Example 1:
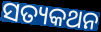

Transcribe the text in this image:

ସତ୍ୟକଥନ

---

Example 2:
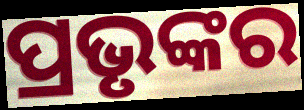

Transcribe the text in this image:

ପ୍ରଭୃଙ୍କର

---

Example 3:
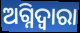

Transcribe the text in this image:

ଅଗ୍ନିଦ୍ଵାରା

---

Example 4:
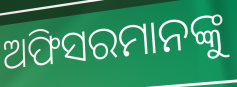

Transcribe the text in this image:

ଅଫିସରମାନଙ୍କୁ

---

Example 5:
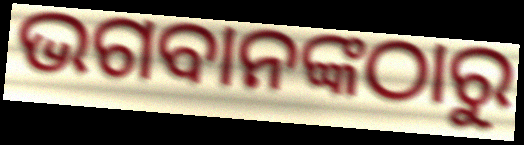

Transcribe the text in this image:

ଭଗବାନଙ୍କଠାରୁ